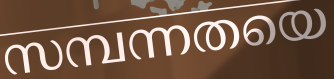
സമ്പന്നതയെ